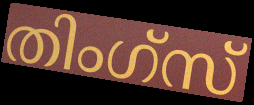
തിംഗ്സ്